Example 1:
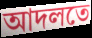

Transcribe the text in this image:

আদলতে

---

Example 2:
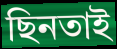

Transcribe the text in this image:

ছিনতাই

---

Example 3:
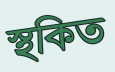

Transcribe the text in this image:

স্থকিত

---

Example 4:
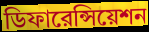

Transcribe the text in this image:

ডিফারেন্সিয়েশন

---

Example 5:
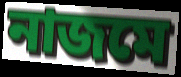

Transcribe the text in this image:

নাজমে